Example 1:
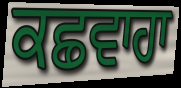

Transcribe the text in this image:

ਕਛਵਾਹਾ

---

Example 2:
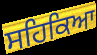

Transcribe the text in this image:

ਸਹਿਕਿਆ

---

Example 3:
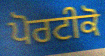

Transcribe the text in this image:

ਪੋਰਟੀਕੋ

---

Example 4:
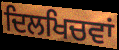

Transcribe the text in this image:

ਦਿਲਖਿਚਵਾਂ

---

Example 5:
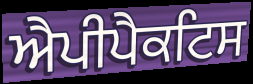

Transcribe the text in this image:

ਐਪੀਪੈਕਟਿਸ